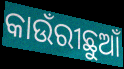
କାଉଁରୀଛୁଆଁ